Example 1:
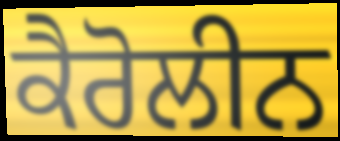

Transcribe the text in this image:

ਕੈਰੋਲੀਨ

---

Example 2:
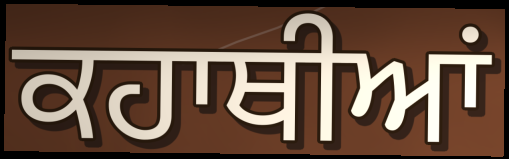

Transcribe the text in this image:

ਕਹਾਥੀਆਂ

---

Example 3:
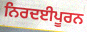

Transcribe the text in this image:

ਨਿਰਦਈਪੂਰਨ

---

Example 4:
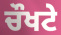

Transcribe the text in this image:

ਚੌਖਟੇ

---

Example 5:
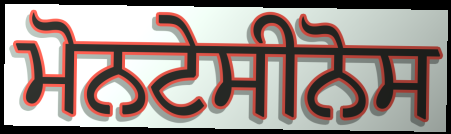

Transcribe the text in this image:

ਮੋਨਟੇਸੀਨੋਸ